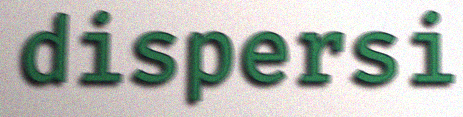
dispersi